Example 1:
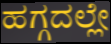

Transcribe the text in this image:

ಹಗ್ಗದಲ್ಲೇ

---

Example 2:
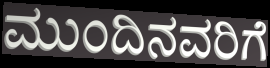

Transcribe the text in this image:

ಮುಂದಿನವರಿಗೆ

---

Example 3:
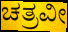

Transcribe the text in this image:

ಚತ್ರವೀ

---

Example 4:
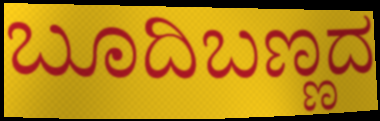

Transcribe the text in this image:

ಬೂದಿಬಣ್ಣದ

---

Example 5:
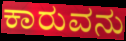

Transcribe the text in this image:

ಕಾರುವನು